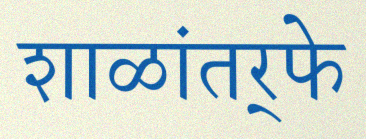
शाळांतर्फे